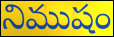
నిముషం